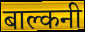
बाल्कनी